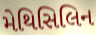
મેથિસિલિન